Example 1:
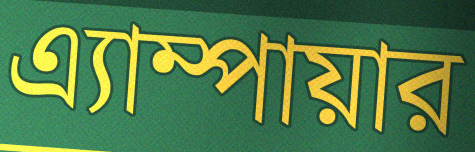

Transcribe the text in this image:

এ্যাম্পায়ার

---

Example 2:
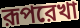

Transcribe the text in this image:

রূপরেখা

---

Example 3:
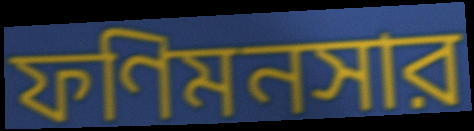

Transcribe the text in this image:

ফণিমনসার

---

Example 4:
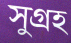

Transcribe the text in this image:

সুগ্রহ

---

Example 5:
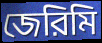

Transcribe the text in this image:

জেরিমি